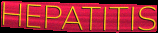
HEPATITIS